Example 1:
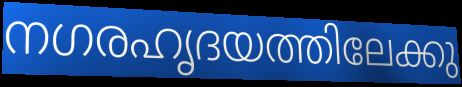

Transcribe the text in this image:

നഗരഹൃദയത്തിലേക്കു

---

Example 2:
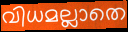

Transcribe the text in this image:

വിധമല്ലാതെ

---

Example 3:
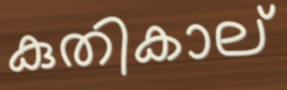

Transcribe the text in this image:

കുതികാല്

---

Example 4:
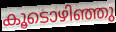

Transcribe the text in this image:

കൂടൊഴിഞ്ഞു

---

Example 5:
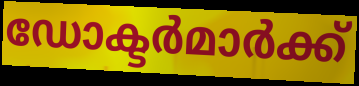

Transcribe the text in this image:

ഡോക്ടർമാർക്ക്